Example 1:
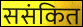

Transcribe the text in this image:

ससंकित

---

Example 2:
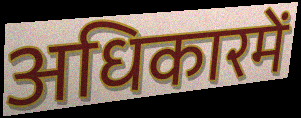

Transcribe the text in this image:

अधिकारमें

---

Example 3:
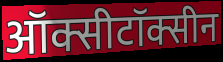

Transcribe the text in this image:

ऑक्सीटॉक्सीन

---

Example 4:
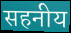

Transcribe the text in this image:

सहनीय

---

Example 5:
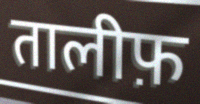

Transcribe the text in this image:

तालीफ़